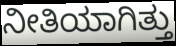
ನೀತಿಯಾಗಿತ್ತು